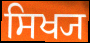
ਸਿਖ੍ਯ